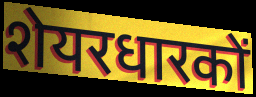
शेयरधारकों